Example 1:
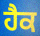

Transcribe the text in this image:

ਹੈਕ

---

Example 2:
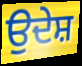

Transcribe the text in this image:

ਉਦੇਸ਼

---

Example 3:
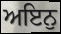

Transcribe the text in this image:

ਅਇਨੁ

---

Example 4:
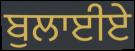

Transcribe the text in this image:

ਬੁਲਾਈਏ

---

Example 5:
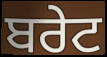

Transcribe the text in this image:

ਬਰੇਟ